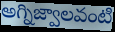
అగ్నిజ్వాలవంటి